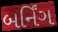
બર્નિંગ